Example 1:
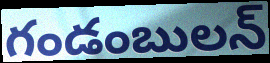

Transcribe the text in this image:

గండంబులన్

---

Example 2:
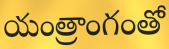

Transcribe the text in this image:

యంత్రాంగంతో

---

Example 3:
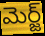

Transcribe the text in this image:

మెర్జ్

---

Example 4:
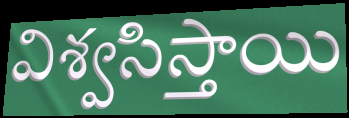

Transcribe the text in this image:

విశ్వసిస్తాయి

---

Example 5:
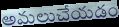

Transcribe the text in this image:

అమలుచేయడం